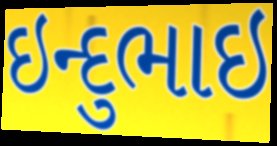
ઇન્દુભાઇ